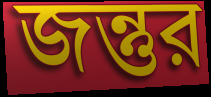
জন্তুর